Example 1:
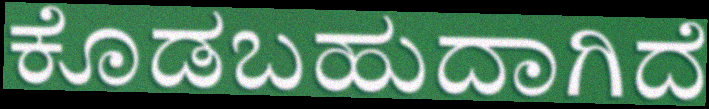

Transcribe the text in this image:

ಕೊಡಬಹುದಾಗಿದೆ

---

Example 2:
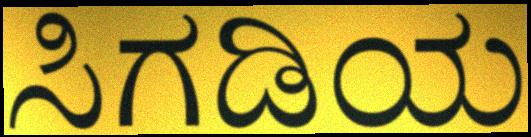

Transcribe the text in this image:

ಸಿಗಡಿಯ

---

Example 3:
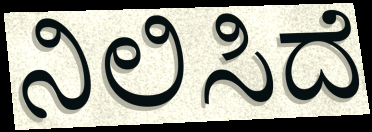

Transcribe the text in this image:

ನಿಲಿಸಿದೆ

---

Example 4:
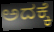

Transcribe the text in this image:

ಅದಕ್ಕೆ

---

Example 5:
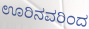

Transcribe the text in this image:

ಊರಿನವರಿಂದ